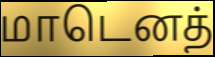
மாடெனத்